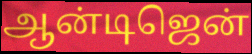
ஆன்டிஜென்